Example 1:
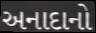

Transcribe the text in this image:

અનાદાનો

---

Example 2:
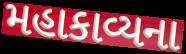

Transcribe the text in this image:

મહાકાવ્યના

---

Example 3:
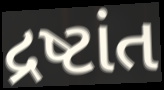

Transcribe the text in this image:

દ્રષ્ટાંત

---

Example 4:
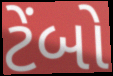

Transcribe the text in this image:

ટેંબો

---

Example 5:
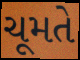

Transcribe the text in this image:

ચૂમતે